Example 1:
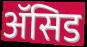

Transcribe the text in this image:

ॲसिड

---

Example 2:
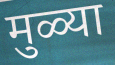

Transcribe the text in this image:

मुळ्या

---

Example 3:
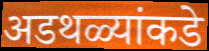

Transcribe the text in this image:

अडथळ्यांकडे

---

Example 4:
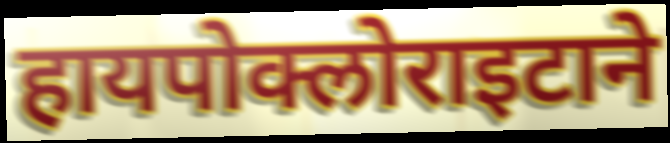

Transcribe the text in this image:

हायपोक्लोराइटाने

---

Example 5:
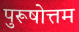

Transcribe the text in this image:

पुरूषोत्तम